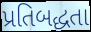
પ્રતિબદ્ધતા